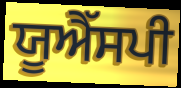
ਯੂਐੱਸਪੀ